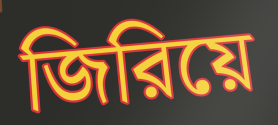
জিরিয়ে